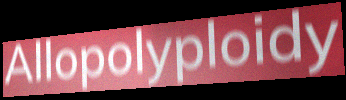
Allopolyploidy